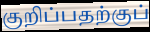
குறிப்பதற்குப்